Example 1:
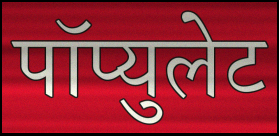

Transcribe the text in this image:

पॉप्युलेट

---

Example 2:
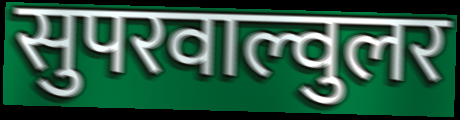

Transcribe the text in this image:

सुपरवाल्वुलर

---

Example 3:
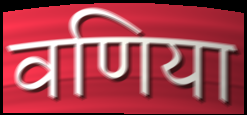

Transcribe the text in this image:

वणिया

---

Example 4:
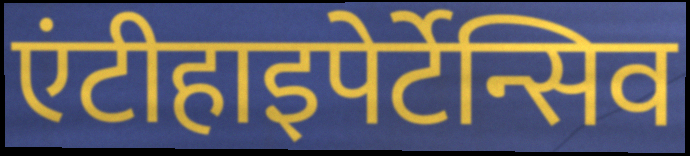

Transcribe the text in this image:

एंटीहाइपेर्टेन्सिव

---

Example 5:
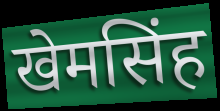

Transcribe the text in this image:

खेमसिंह